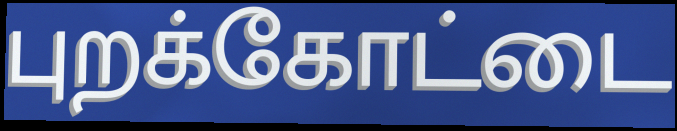
புறக்கோட்டை